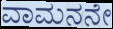
ವಾಮನನೇ